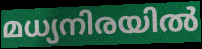
മധ്യനിരയിൽ